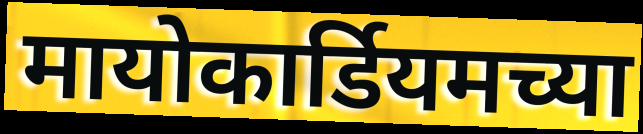
मायोकार्डियमच्या